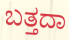
ಬತ್ತದಾ